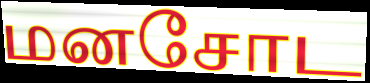
மனசோட